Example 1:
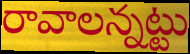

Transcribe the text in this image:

రావాలన్నట్టు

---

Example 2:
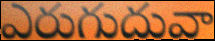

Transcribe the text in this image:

ఎరుగుదువా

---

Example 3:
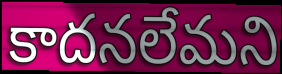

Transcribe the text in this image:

కాదనలేమని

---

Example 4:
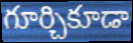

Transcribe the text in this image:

గూర్చికూడా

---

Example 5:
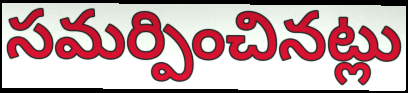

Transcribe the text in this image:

సమర్పించినట్లు